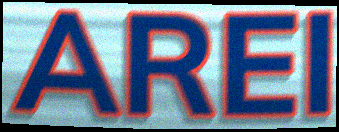
AREI